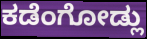
ಕಡೆಂಗೋಡ್ಲು